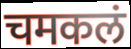
चमकलं